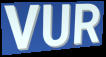
VUR